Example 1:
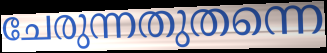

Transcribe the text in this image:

ചേരുന്നതുതന്നെ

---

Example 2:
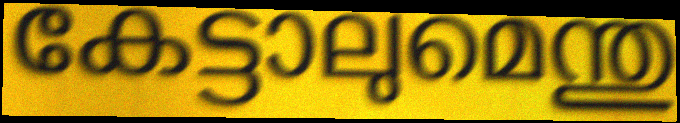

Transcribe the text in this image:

കേട്ടാലുമെന്തു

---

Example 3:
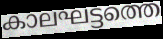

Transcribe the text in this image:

കാലഘട്ടത്തെ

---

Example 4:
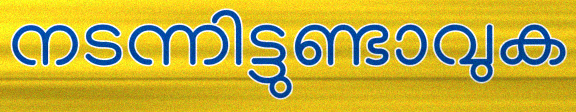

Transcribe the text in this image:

നടന്നിട്ടുണ്ടാവുക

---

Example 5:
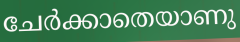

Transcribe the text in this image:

ചേർക്കാതെയാണു